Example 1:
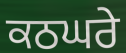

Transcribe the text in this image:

ਕਠਘਰੇ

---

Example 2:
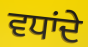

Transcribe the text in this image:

ਵਧਾਂਦੇ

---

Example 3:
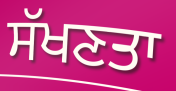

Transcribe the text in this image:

ਸੱਖਣਤਾ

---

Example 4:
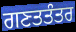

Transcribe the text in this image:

ਗਣਤਤੰਤਰ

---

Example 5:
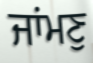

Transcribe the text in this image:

ਜਾਂਮਣੁ